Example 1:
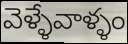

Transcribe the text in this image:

వెళ్ళేవాళ్ళం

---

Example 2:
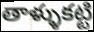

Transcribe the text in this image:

తాళ్ళుకట్టి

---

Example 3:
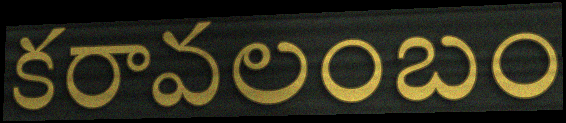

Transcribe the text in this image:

కరావలంబం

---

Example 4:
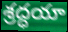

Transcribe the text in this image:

శ్రద్ధయా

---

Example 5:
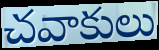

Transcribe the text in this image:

చవాకులు